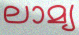
ലാമ്യ